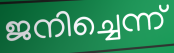
ജനിച്ചെന്ന്